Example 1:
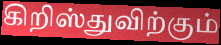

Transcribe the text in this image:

கிறிஸ்துவிற்கும்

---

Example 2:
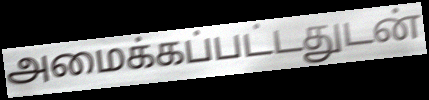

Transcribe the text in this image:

அமைக்கப்பட்டதுடன்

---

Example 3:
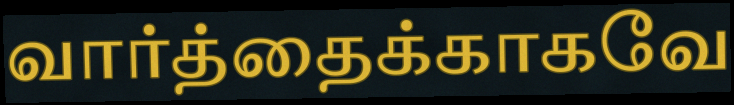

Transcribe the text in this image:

வார்த்தைக்காகவே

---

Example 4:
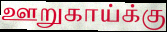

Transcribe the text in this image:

ஊறுகாய்க்கு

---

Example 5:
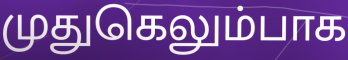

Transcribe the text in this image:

முதுகெலும்பாக